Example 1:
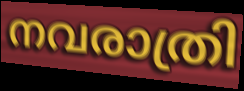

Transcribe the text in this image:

നവരാത്രി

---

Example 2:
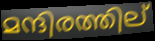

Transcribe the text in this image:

മന്ദിരത്തില്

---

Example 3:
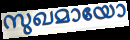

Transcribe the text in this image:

സുഖമായോ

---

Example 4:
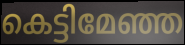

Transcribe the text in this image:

കെട്ടിമേഞ്ഞ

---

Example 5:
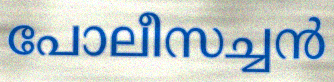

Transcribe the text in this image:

പോലീസച്ചൻ